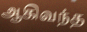
ஆகிவந்த